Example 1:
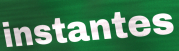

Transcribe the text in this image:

instantes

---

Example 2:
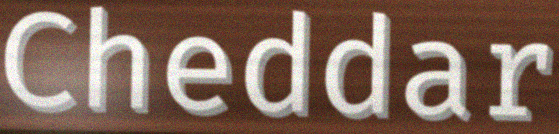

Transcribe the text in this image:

Cheddar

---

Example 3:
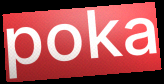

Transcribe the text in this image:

poka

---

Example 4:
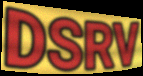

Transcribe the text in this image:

DSRV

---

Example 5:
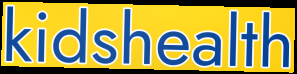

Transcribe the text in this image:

kidshealth